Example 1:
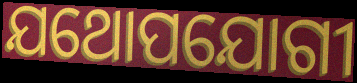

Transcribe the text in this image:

ଯଥୋପଯୋଗୀ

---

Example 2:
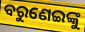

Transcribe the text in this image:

ବରୁଣେଇଙ୍କୁ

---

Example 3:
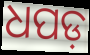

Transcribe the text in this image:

ଧପଡ଼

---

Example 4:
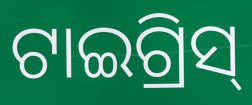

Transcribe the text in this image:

ଟାଇଗ୍ରିସ୍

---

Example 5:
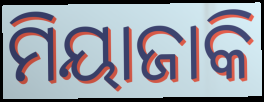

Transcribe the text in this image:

ମିୟାଜାକି